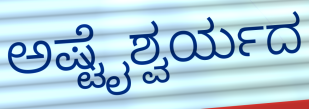
ಅಷ್ಟೈಶ್ವರ್ಯದ